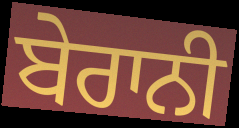
ਬੇਰਾਨੀ